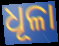
ଧୂଳା